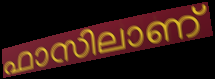
ഫാസിലാണ്